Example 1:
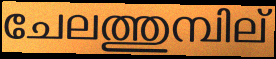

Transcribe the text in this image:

ചേലത്തുമ്പില്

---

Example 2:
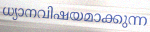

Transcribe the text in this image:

ധ്യാനവിഷയമാക്കുന്ന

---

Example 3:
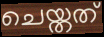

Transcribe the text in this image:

ചെയ്തത്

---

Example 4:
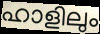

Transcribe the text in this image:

ഹാളിലും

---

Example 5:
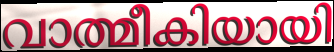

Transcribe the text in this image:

വാത്മീകിയായി